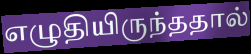
எழுதியிருந்ததால்